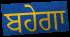
ਬਹੇਗਾ